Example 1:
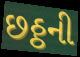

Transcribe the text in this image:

છઠ્ઠની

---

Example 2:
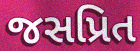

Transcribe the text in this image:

જસપ્રિત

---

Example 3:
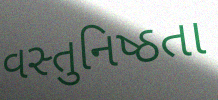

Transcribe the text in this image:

વસ્તુનિષ્ઠતા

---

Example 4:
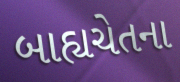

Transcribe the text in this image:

બાહ્યચેતના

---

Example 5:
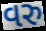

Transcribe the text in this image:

વરુ